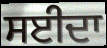
ਸਈਦਾ